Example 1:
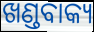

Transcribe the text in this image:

ଖଣ୍ଡବାକ୍ୟ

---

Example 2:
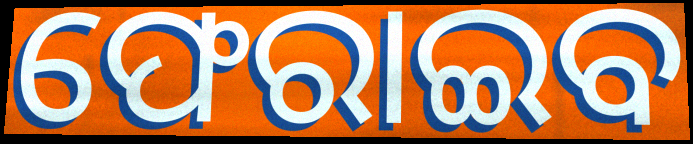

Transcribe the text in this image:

ଫେରାଇବ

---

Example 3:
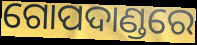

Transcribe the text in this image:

ଗୋପଦାଣ୍ଡରେ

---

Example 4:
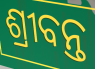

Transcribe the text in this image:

ଶ୍ରୀବନ୍ତ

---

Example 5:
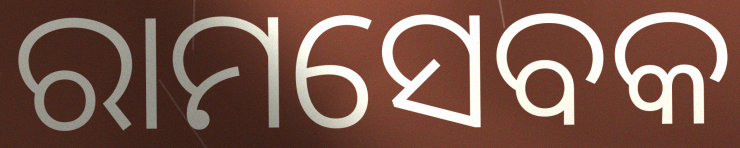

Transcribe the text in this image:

ରାମସେବକ